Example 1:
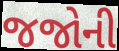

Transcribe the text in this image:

જજોની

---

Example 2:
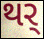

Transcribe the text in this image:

થર્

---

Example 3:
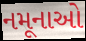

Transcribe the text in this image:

નમૂનાઓ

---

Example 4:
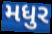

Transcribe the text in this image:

મધુર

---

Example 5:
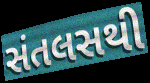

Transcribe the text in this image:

સંતલસથી